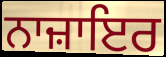
ਨਾਜ਼ਾਇਰ